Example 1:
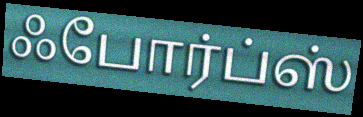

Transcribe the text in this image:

ஃபோர்ப்ஸ்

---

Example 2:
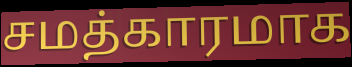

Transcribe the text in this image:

சமத்காரமாக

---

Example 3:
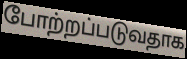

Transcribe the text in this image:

போற்றப்படுவதாக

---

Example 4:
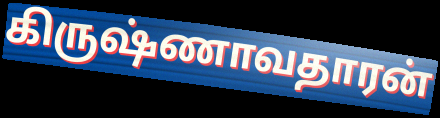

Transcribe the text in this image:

கிருஷ்ணாவதாரன்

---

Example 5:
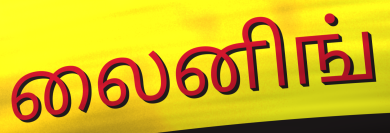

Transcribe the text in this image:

லைனிங்